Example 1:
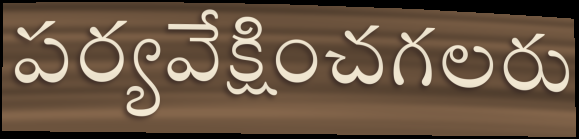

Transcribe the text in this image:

పర్యవేక్షించగలరు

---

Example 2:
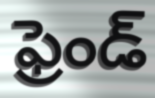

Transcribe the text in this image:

ఫ్రెండ్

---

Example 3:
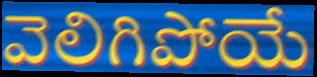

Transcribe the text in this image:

వెలిగిపోయే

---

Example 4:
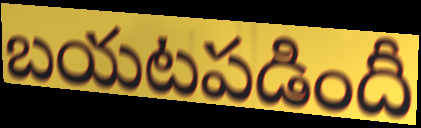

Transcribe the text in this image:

బయటపడిందీ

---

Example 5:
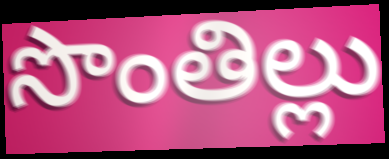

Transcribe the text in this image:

సొంతిల్లు